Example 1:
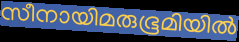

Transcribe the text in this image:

സീനായിമരുഭൂമിയിൽ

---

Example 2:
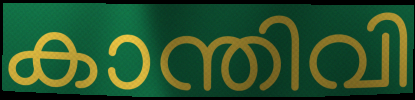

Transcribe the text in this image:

കാന്തിവി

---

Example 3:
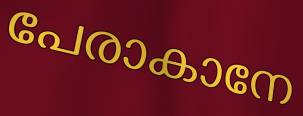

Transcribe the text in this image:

പേരാകാനേ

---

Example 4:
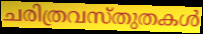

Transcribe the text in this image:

ചരിത്രവസ്തുതകൾ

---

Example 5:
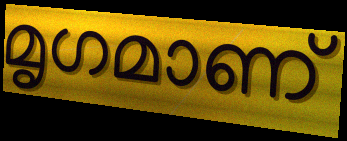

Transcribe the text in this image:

മൃഗമാണ്